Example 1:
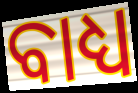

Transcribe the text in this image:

ବାଧ୍ୟ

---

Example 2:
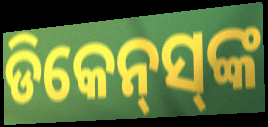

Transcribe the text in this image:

ଡିକେନ୍‌ସ୍‌ଙ୍କ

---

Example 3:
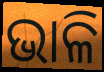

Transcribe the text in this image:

ଭାଳି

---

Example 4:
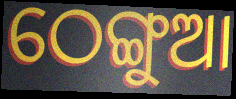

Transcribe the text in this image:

ଠେଙ୍ଗୁଆ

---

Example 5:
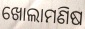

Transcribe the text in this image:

ଖୋଲାମଣିଷ